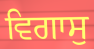
ਵਿਗਾਸੁ